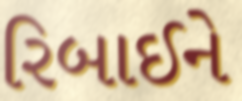
રિબાઈને